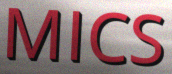
MICS